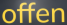
offen